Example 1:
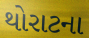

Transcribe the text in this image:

થોરાટના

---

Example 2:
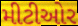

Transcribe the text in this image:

મીટીઓર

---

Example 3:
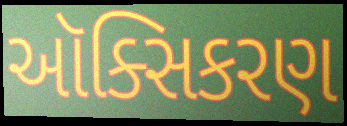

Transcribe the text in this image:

ઑક્સિકરણ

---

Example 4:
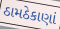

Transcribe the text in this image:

ઠામઠેકાણાં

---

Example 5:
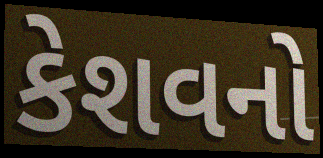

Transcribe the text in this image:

કેશવનો